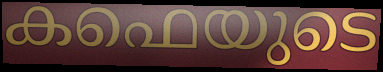
കഫെയുടെ